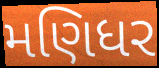
મણિધર